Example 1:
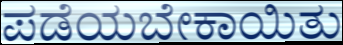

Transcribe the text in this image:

ಪಡೆಯಬೇಕಾಯಿತು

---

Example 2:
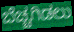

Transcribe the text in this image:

ಬೆಚ್ಚಗಿಡಲು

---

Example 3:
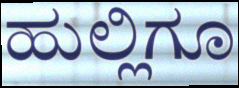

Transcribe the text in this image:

ಹುಲ್ಲಿಗೂ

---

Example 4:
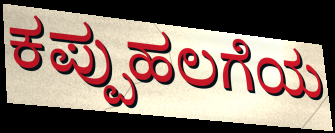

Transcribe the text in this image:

ಕಪ್ಪುಹಲಗೆಯ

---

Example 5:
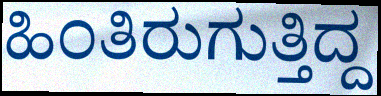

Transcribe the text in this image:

ಹಿಂತಿರುಗುತ್ತಿದ್ದ